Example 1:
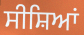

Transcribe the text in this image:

ਸੀਸ਼ਿਆਂ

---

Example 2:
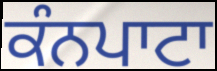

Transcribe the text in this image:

ਕੰਨਪਾਟਾ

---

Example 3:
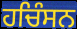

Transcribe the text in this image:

ਹਚਿੰਸਨ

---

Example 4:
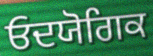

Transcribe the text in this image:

ਓਦਯੋਗਿਕ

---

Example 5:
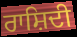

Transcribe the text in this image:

ਰਾਸ਼ਿਦੀ